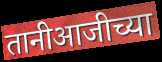
तानीआजीच्या